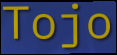
Tojo